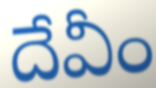
దేవీం